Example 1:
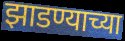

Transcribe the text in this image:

झाडण्याच्या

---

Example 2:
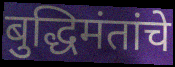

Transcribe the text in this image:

बुद्धिमंतांचे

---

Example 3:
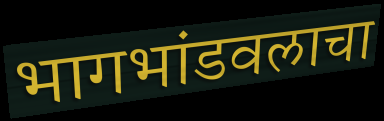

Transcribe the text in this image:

भागभांडवलाचा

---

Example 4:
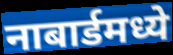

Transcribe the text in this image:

नाबार्डमध्ये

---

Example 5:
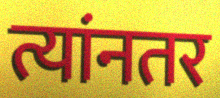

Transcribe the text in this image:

त्यांनतर